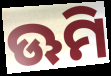
ଊମି